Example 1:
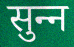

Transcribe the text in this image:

सुन्‍न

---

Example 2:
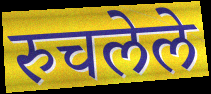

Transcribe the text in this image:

रुचलेले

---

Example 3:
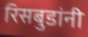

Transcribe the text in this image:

रिसबुडांनी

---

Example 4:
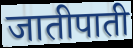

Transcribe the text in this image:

जातीपाती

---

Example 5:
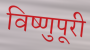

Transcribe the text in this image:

विष्णुपूरी